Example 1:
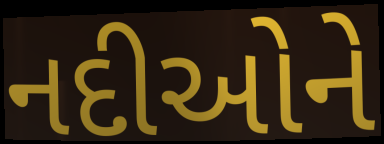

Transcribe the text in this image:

નદીઓને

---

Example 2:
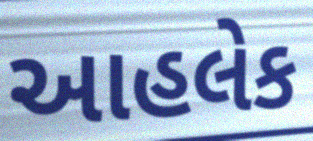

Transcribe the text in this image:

આહલેક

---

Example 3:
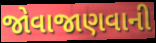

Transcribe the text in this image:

જોવાજાણવાની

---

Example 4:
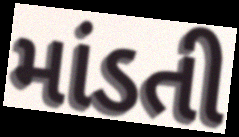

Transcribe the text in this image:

માંડતી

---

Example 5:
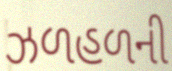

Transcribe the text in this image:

ઝળહળની